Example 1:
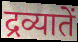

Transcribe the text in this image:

द्रव्यातें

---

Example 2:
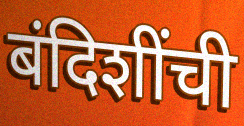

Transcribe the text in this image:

बंदिशींची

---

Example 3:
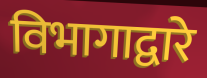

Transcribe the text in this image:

विभागाद्वारे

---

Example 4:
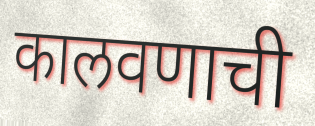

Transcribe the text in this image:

कालवणाची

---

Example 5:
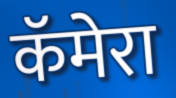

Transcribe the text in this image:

कॅमेरा